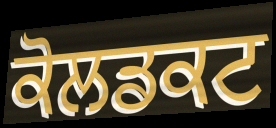
ਕੋਲਡਕਟ